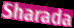
Sharada